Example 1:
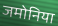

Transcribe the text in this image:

जमोनिया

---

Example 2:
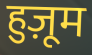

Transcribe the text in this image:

हुज़ूम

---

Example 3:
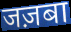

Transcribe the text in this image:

जज़बा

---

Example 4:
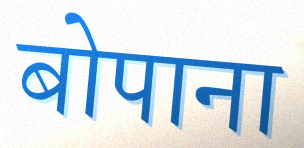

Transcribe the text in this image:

बोपाना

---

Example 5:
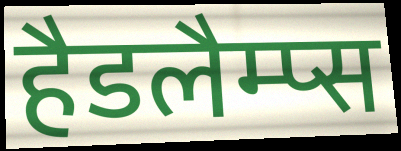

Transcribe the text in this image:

हैडलैम्प्स